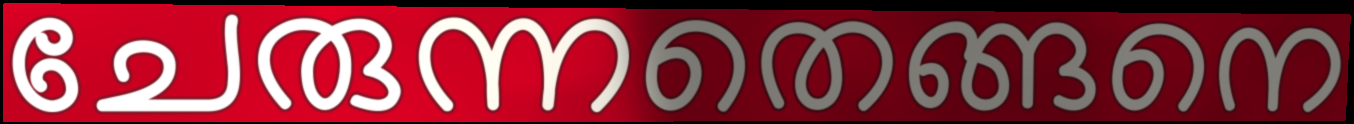
ചേരുന്നതെങ്ങനെ